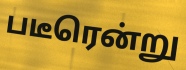
படீரென்று